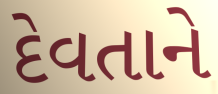
દેવતાને